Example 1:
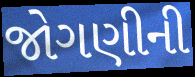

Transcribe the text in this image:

જોગણીની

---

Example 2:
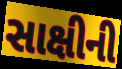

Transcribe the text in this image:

સાક્ષીની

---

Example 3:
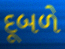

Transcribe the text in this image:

દૂબળે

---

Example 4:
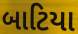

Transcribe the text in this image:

બાટિયા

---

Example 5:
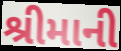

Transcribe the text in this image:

શ્રીમાની